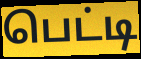
பெட்டி